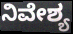
ನಿವೇಶ್ಯ